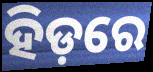
ହିଡ଼ରେ